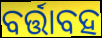
ବର୍ତ୍ତାବହ